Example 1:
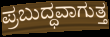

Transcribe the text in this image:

ಪ್ರಬುದ್ಧವಾಗುತ್ತ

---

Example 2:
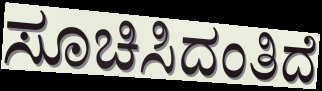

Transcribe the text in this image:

ಸೂಚಿಸಿದಂತಿದೆ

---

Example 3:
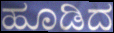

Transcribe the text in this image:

ಹೂಡಿದ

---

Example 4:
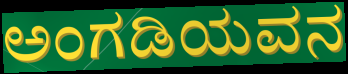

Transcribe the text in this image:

ಅಂಗಡಿಯವನ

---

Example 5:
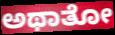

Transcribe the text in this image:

ಅಥಾತೋ